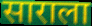
साराला